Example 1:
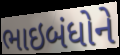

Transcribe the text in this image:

ભાઇબંધોને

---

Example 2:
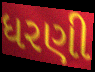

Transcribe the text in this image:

ધરણી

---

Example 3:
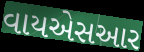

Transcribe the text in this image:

વાયએસઆર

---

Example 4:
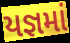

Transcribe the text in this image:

યજ્ઞમાં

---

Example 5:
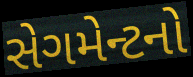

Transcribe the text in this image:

સેગમેન્ટનો